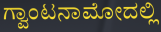
ಗ್ವಾಂಟನಾಮೋದಲ್ಲಿ